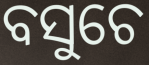
ବସୁଚେ